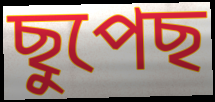
ছুপেছ